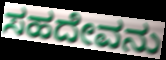
ಸಹದೇವನು